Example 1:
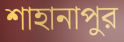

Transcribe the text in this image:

শাহানাপুর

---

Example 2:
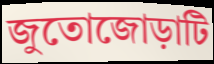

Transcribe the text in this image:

জুতোজোড়াটি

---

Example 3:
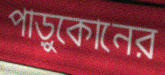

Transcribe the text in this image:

পাড়ুকোনের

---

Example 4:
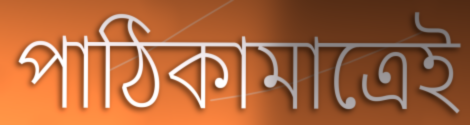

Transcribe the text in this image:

পাঠিকামাত্রেই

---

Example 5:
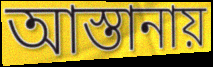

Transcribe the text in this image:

আস্তানায়